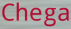
Chega